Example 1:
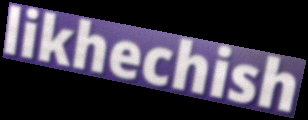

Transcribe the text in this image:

likhechish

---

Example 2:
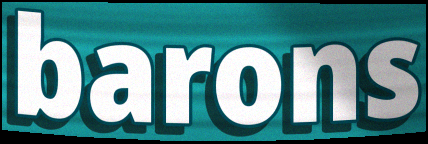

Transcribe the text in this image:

barons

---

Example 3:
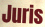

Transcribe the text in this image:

Juris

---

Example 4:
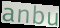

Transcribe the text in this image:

anbu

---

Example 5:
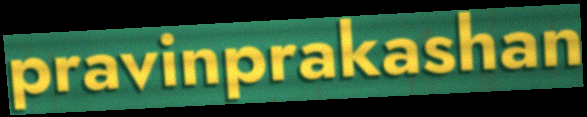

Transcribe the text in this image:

pravinprakashan